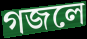
গজলে